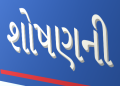
શોષણની